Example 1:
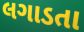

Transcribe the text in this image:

લગાડતા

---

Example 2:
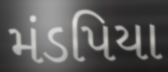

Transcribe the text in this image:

મંડપિયા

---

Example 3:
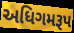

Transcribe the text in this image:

અધિગમરૂપ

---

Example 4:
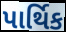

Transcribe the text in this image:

પાર્થિક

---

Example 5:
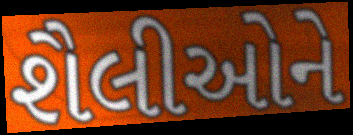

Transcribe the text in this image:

શૈલીઓને